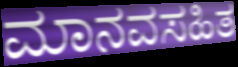
ಮಾನವಸಹಿತ